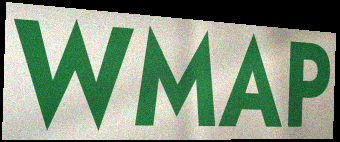
WMAP